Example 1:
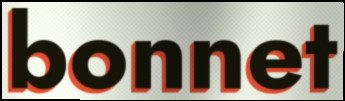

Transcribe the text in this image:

bonnet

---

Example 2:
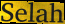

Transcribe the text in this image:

Selah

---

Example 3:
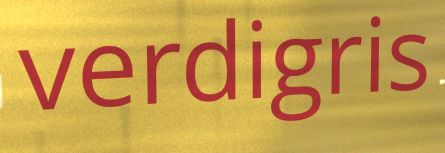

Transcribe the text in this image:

verdigris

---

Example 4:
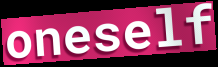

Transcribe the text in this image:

oneself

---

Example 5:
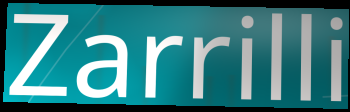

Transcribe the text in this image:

Zarrilli